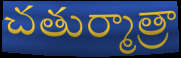
చతుర్మాత్రా